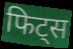
फिट्स